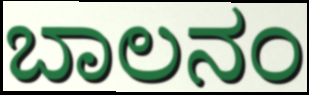
ಬಾಲನಂ